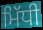
ਮਿੱਧੀ